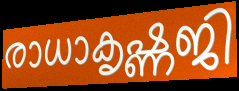
രാധാകൃഷ്ണജി